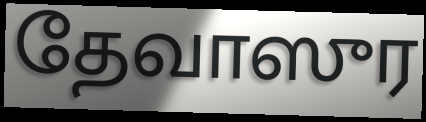
தேவாஸுர